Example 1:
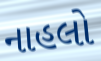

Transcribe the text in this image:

નાહલો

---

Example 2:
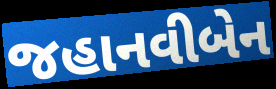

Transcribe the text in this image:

જહાનવીબેન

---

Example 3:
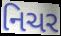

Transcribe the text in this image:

નિચર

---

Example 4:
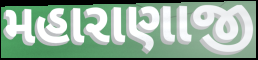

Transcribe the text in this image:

મહારાણાજી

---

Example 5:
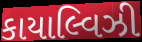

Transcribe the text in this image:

કાયાલ્વિઝી